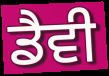
ਡੈਵੀ